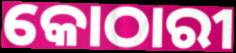
କୋଠାରୀ